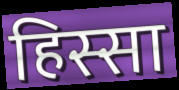
हिस्सा